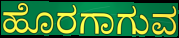
ಹೊರಗಾಗುವ